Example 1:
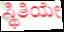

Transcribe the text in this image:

ಸ್ಥಿತಿಯೇ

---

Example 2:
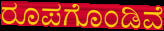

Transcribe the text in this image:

ರೂಪಗೊಂಡಿವೆ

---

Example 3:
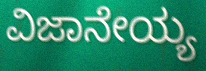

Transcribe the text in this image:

ವಿಜಾನೇಯ್ಯ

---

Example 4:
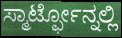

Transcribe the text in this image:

ಸ್ಮಾರ್ಟ್ಫೋನ್ನಲ್ಲಿ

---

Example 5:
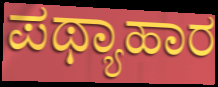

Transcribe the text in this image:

ಪಥ್ಯಾಹಾರ